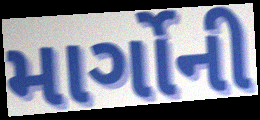
માર્ગોની